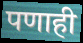
पणाही